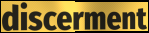
discerment